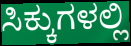
ಸಿಕ್ಕುಗಳಲ್ಲಿ